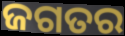
ଜଗତର